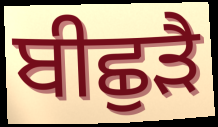
ਬੀਛੁੜੈ